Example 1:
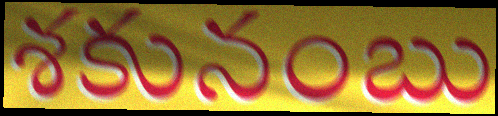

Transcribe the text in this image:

శకునంబు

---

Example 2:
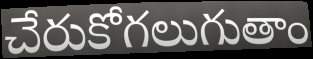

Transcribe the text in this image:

చేరుకోగలుగుతాం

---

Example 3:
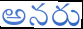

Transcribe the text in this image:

అనరు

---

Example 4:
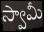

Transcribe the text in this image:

స్వామీ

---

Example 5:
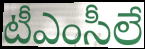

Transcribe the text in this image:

టీఎంసీలే